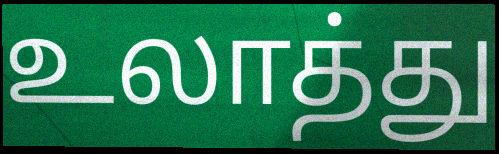
உலாத்து